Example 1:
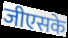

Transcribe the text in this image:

जीएसके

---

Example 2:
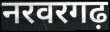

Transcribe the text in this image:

नरवरगढ़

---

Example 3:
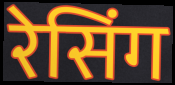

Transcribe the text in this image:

रेसिंग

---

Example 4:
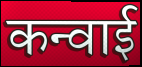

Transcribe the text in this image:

कन्वाई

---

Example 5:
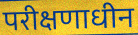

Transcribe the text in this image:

परीक्षणाधीन